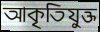
আকৃতিযুক্ত